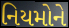
નિયમોને